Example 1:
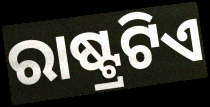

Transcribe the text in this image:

ରାଷ୍ଟ୍ରଟିଏ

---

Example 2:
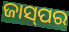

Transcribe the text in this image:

ଜାସ୍‌ପର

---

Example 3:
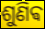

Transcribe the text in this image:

ଶୁଣିଵ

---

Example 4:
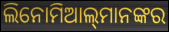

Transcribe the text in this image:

ଲିନୋମିଆଲ୍‌ମାନଙ୍କର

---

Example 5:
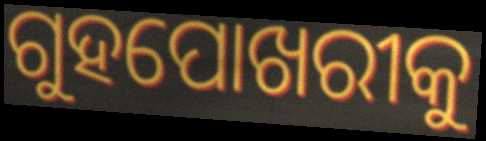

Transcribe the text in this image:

ଗୁହପୋଖରୀକୁ